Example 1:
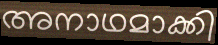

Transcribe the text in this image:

അനാഥമാക്കി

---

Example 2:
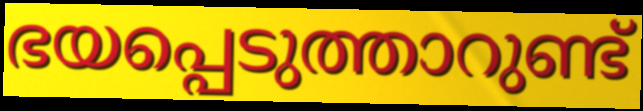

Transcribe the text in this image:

ഭയപ്പെടുത്താറുണ്ട്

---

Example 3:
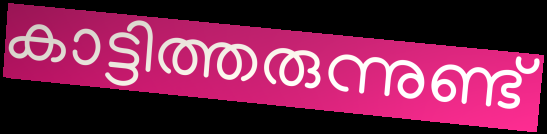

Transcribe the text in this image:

കാട്ടിത്തരുന്നുണ്ട്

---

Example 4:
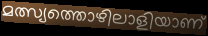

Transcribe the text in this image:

മത്സ്യത്തൊഴിലാളിയാണ്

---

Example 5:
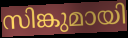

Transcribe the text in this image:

സിങ്കുമായി